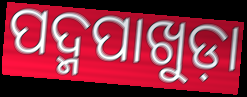
ପଦ୍ମପାଖୁଡ଼ା